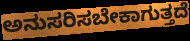
ಅನುಸರಿಸಬೇಕಾಗುತ್ತದೆ